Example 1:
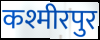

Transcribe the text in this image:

कश्मीरपुर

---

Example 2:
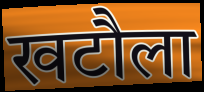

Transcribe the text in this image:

खटौला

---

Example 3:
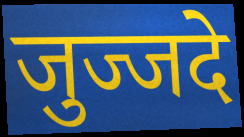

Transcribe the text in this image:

जुज्जदे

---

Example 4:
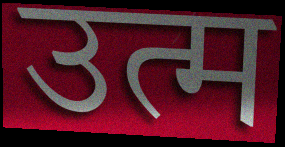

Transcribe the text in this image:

उत्म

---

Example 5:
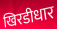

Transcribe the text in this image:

खिरडीधार